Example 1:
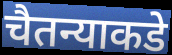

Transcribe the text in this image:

चैतन्याकडे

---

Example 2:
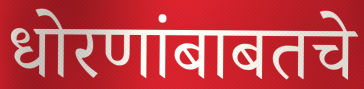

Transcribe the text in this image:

धोरणांबाबतचे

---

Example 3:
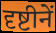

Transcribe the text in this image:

दृष्टीनें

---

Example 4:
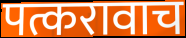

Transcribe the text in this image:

पत्करावाच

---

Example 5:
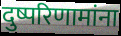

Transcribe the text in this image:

दुष्परिणामांना